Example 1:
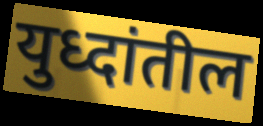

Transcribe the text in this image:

युध्दांतील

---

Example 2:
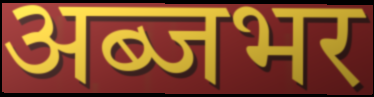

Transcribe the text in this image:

अब्जभर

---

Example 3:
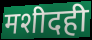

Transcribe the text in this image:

मशीदही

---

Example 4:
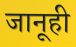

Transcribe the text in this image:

जानूही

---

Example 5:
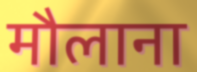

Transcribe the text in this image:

मौलाना